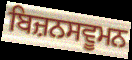
ਬਿਜ਼ਨਸਵੂਮਨ